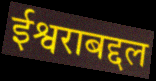
ईश्वराबद्दल